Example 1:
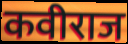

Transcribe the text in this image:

कवीराज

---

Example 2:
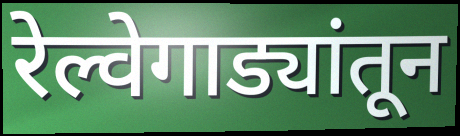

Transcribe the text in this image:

रेल्वेगाड्यांतून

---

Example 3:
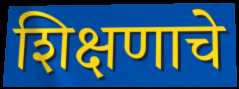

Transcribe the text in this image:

शिक्षणाचे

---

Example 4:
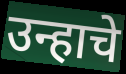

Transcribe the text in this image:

उन्हाचे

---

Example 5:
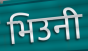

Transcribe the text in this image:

भिउनी